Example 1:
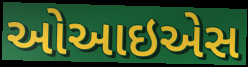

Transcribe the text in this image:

ઓઆઇએસ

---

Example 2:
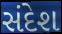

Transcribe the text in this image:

સંદેશ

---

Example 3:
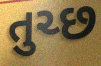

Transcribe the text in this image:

તુચ્છ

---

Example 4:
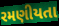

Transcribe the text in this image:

રમણીયતા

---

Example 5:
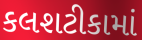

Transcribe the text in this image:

કલશટીકામાં